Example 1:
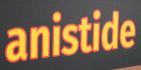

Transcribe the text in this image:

anistide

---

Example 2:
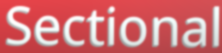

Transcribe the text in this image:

Sectional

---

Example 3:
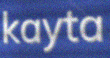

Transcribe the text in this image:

kayta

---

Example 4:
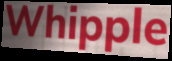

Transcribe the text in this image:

Whipple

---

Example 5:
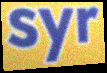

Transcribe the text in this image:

syr